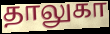
தாலுகா